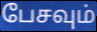
பேசவும்